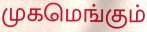
முகமெங்கும்